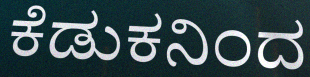
ಕೆಡುಕನಿಂದ